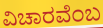
ವಿಚಾರವೆಂಬ